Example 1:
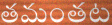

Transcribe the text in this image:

తమంతట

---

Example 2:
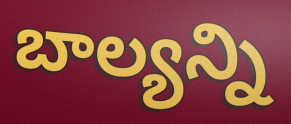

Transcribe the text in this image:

బాల్యన్ని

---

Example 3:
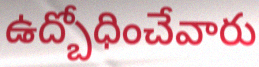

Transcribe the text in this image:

ఉద్బోధించేవారు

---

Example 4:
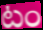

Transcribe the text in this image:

టం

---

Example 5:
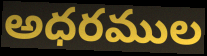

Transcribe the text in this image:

అధరముల